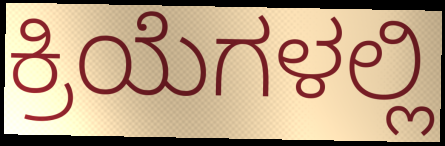
ಕ್ರಿಯೆಗಳಲ್ಲಿ